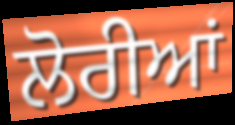
ਲੋਰੀਆਂ